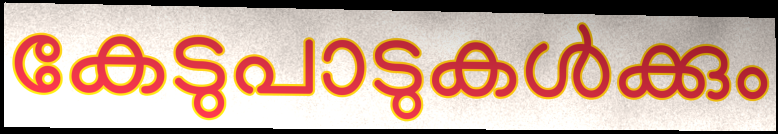
കേടുപാടുകൾക്കും